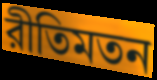
রীতিমতন